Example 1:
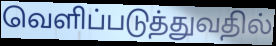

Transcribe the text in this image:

வெளிப்படுத்துவதில்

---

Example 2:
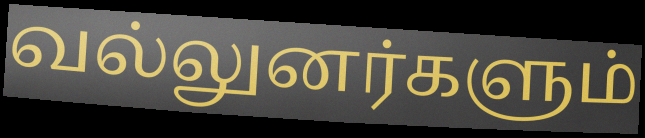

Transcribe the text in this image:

வல்லுனர்களும்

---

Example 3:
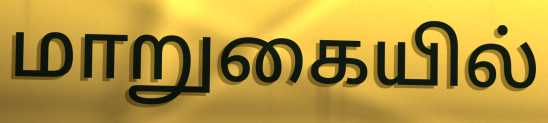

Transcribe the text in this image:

மாறுகையில்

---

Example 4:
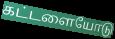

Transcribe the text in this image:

கட்டளையோடு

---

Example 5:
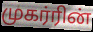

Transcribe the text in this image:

முகர்ரின்